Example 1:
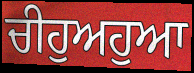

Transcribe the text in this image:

ਚੀਹੁਅਹੁਆ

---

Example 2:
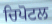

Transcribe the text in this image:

ਚਿਪੋਟਲ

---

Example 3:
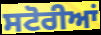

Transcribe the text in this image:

ਸਟੋਰੀਆਂ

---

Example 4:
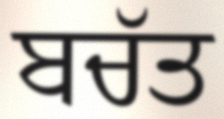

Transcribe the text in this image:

ਬਚੱਤ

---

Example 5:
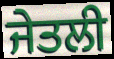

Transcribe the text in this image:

ਜੇਤਲੀ